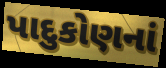
પાદુકોણનાં